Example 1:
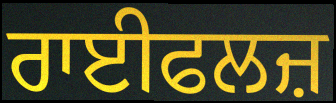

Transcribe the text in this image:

ਰਾਈਫਲਜ਼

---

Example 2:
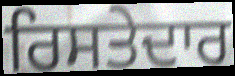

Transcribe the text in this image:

ਰਿਸਤੇਦਾਰ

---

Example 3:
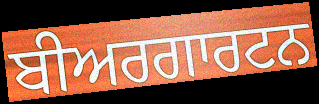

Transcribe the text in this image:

ਬੀਅਰਗਾਰਟਨ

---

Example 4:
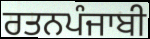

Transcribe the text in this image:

ਰਤਨਪੰਜਾਬੀ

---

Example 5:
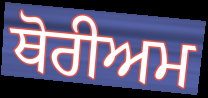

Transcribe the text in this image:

ਥੋਰੀਅਮ